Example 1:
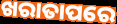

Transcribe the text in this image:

ଖରାତାପରେ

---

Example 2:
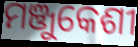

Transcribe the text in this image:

ମଞ୍ଜୁକେଶୀ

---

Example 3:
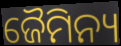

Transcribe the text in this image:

ଜୈମିନ୍ୟ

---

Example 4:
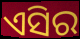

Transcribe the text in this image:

ଏସିର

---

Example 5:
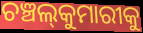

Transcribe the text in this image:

ଚଞ୍ଚଲ୍‍କୁମାରୀକୁ